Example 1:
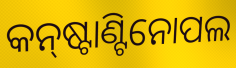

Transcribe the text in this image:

କନ୍‌ଷ୍ଟାଣ୍ଟିନୋପଲ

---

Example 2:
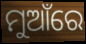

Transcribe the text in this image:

ମୁଆଁରେ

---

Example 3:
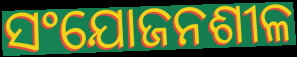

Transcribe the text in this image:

ସଂଯୋଜନଶୀଳ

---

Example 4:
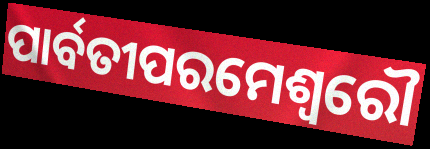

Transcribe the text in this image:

ପାର୍ବତୀପରମେଶ୍ଵରୌ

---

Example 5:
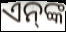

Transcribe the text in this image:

ଏନ୍‌ଙ୍କ